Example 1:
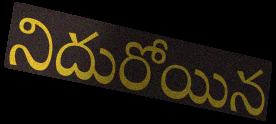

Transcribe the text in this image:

నిదురోయిన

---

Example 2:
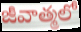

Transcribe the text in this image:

జీవాత్మలో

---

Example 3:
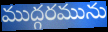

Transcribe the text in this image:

ముద్గరమును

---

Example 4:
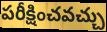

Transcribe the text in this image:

పరీక్షించవచ్చు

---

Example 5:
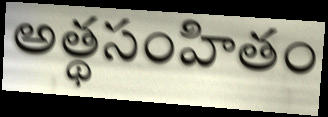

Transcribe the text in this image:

అత్థసంహితం